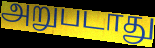
அறுபடாது